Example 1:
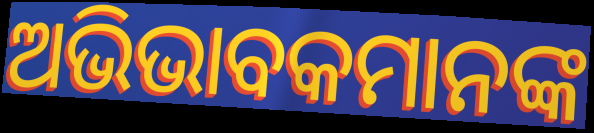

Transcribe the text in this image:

ଅଭିଭାବକମାନଙ୍କ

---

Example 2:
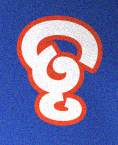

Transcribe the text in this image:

ତୃ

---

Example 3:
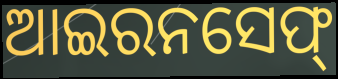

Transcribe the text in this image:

ଆଇରନସେଫ୍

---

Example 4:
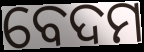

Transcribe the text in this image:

ବେଦମ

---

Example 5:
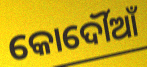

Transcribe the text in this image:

କୋର୍ଦୌଆଁ